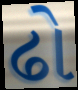
ઢો